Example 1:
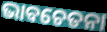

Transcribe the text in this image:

ଭାବଚେତନା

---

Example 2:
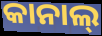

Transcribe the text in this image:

କାନାଲ୍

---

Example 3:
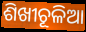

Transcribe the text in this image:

ଶିଖୀଚୂଳିଆ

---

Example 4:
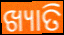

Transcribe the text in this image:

ଖ୍ଯାତି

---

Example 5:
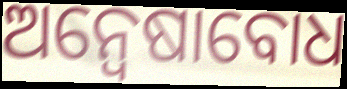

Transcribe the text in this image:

ଅନ୍ୱେଷାବୋଧ